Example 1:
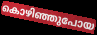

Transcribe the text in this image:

കൊഴിഞ്ഞുപോയ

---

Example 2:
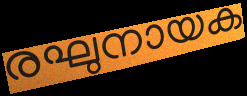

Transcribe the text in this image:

രഘുനായക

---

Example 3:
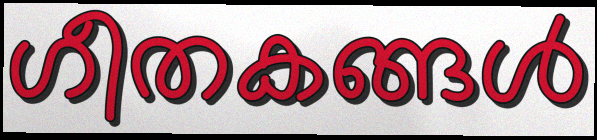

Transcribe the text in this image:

ഗീതകങ്ങൾ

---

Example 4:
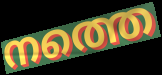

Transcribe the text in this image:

നത്തെ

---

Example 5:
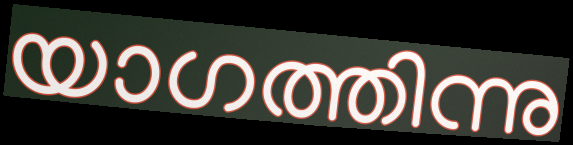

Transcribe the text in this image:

യാഗത്തിന്നു